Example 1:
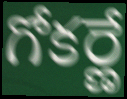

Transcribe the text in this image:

గోకర్ణే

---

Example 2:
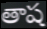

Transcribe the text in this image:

తాష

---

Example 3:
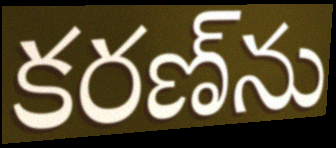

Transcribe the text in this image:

కరణ్‌ను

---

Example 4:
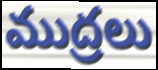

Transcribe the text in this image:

ముద్రలు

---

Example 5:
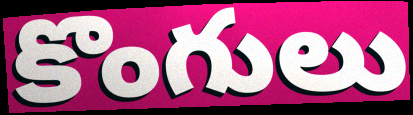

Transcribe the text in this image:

కొంగులు